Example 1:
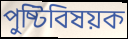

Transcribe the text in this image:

পুষ্টিবিষয়ক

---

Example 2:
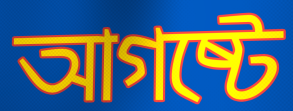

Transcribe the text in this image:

আগষ্টে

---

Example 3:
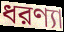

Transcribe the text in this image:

ধরণ্যা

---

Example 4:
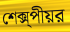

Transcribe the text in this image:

শেক্স্পীয়র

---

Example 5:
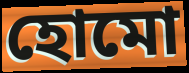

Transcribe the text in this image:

হোমো